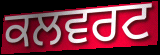
ਕਲਵਰਟ